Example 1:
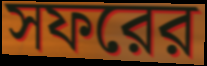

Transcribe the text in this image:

সফরের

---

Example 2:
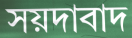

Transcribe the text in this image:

সয়দাবাদ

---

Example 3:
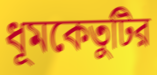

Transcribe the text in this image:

ধূমকেতুটির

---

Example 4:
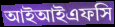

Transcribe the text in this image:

আইআইএফসি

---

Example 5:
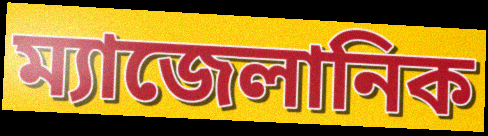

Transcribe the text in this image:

ম্যাজেলানিক